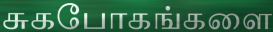
சுகபோகங்களை